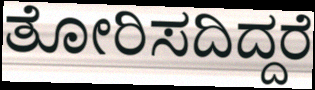
ತೋರಿಸದಿದ್ದರೆ